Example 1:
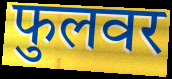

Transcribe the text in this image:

फुलवर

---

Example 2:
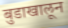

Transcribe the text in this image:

बुडाखालून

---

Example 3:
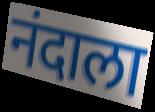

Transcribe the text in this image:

नंदाला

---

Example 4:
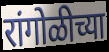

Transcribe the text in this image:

रांगोळीच्या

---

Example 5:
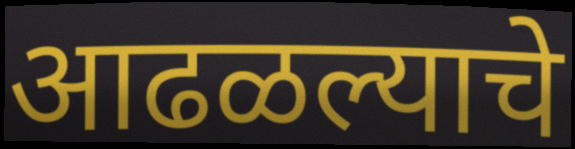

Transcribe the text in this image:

आढळल्याचे